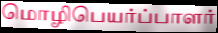
மொழிபெயர்ப்பாளர்